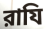
রাযি